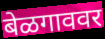
बेळगाववर